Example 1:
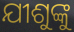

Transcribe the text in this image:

ଯୀଶୁଙ୍କୁ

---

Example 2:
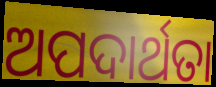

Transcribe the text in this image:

ଅପଦାର୍ଥତା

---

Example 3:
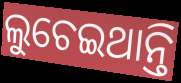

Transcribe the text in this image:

ଲୁଚେଇଥାନ୍ତି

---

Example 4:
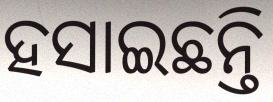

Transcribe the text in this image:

ହସାଇଛନ୍ତି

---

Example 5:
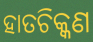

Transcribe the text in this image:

ହାତଚିକ୍କଣ